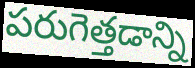
పరుగెత్తడాన్ని